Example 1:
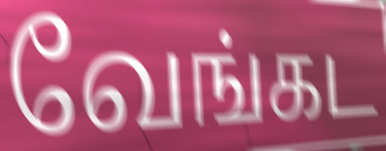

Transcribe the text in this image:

வேங்கட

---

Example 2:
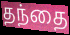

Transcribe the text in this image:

தந்தை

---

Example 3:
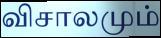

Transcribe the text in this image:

விசாலமும்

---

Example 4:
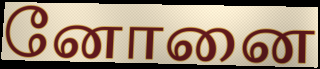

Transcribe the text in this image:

னோனை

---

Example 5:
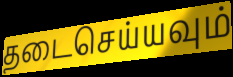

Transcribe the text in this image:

தடைசெய்யவும்